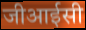
जीआईसी